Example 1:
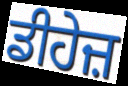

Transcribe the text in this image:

ਡੀਹੇਜ਼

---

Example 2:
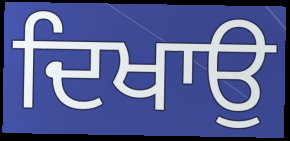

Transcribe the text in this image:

ਦਿਖਾਉ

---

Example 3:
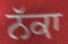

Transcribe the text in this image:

ਨੱਕਾ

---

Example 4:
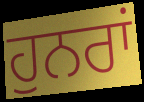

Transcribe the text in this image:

ਹੁਨਰਾਂ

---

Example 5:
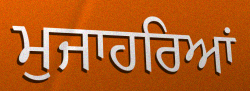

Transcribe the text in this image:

ਮੁਜਾਹਰਿਆਂ